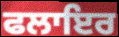
ਫਲਾਇਰ